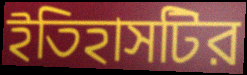
ইতিহাসটির